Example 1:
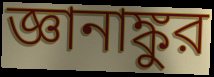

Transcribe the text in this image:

জ্ঞানাঙ্কুর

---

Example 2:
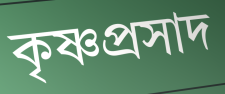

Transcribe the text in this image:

কৃষ্ণপ্রসাদ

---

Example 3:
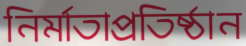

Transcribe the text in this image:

নির্মাতাপ্রতিষ্ঠান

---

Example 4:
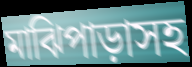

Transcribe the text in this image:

মাঝিপাড়াসহ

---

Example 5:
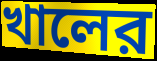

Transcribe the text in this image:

খালের